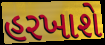
હરખાશે